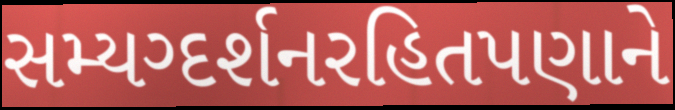
સમ્યગ્દર્શનરહિતપણાને